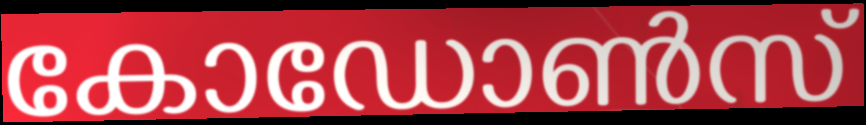
കോഡോൺസ്